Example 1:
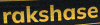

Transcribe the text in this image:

rakshase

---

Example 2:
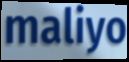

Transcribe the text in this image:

maliyo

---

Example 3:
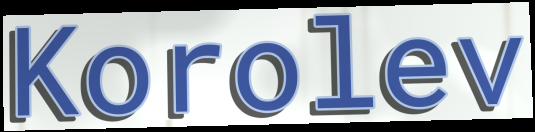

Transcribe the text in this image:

Korolev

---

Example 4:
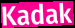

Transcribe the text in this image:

Kadak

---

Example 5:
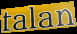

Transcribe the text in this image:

talan